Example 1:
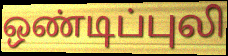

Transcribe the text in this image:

ஒண்டிப்புலி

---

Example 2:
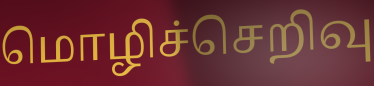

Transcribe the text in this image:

மொழிச்செறிவு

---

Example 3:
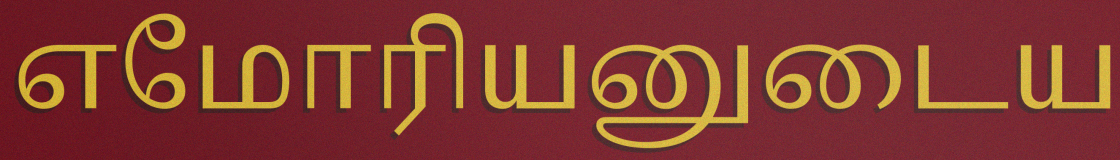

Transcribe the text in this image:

எமோரியனுடைய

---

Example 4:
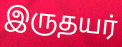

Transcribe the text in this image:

இருதயர்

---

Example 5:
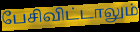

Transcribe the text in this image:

பேசிவிட்டாலும்